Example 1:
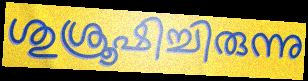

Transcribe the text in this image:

ശുശ്രൂഷിച്ചിരുന്നു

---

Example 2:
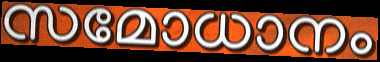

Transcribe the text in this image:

സമോധാനം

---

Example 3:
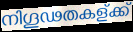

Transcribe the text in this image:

നിഗൂഢതകള്ക്ക്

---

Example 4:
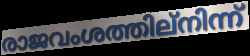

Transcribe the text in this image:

രാജവംശത്തില്നിന്ന്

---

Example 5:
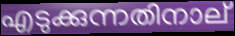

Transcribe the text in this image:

എടുക്കുന്നതിനാല്